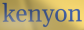
kenyon